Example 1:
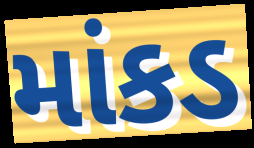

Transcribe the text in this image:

માંકડ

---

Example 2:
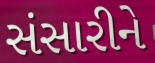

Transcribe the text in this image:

સંસારીને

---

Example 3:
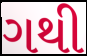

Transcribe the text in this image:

ગથી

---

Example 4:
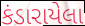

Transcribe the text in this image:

કંડારાયેલા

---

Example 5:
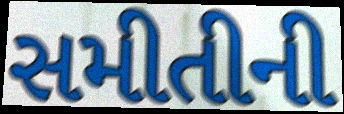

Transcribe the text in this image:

સમીતીની